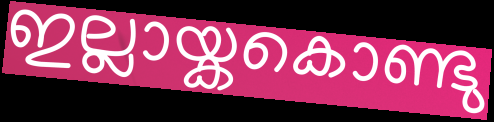
ഇല്ലായ്കകൊണ്ടു